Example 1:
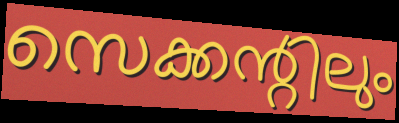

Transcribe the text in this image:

സെക്കന്റിലും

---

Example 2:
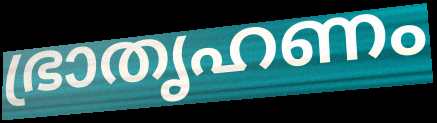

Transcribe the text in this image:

ഭ്രാതൃഹണം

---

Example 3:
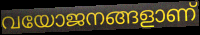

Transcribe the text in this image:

വയോജനങ്ങളാണ്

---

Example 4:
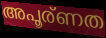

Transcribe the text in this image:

അപൂര്ണത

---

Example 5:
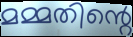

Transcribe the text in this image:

മമ്മതിന്റെ